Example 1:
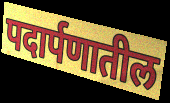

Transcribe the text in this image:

पदार्पणातील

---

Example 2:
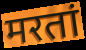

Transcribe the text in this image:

मरतां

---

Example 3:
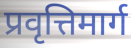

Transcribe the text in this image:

प्रवृत्तिमार्ग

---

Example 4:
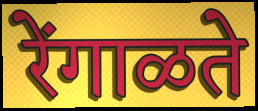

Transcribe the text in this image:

रेंगाळते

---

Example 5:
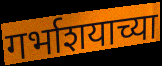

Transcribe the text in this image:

गर्भाशयाच्या